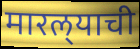
मारल्याची